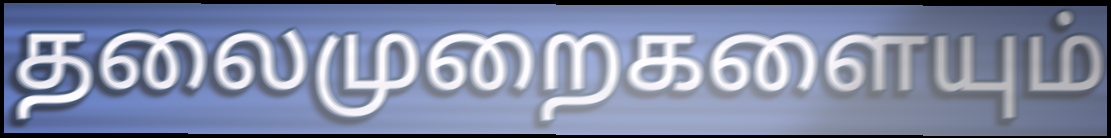
தலைமுறைகளையும்